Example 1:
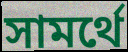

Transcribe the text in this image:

সামর্থে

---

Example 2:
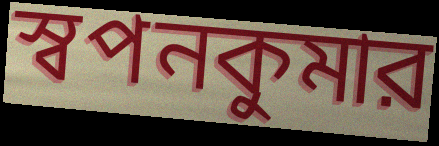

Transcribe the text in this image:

স্বপনকুমার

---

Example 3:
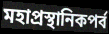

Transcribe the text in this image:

মহাপ্রস্থানিকপর্ব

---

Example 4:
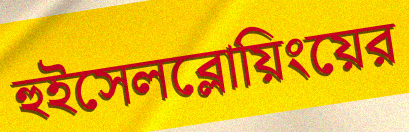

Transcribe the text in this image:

হুইসেলব্লোয়িংয়ের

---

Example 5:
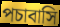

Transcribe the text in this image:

পচাবাসি